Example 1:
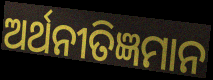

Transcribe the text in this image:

ଅର୍ଥନୀତିଜ୍ଞମାନ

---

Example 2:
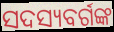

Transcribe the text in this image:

ସଦସ୍ୟବର୍ଗଙ୍କ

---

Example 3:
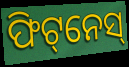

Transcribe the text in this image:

ଫିଟ୍‌ନେସ୍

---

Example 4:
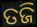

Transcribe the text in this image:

ତଜି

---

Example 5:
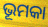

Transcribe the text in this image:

ଭୂମକା